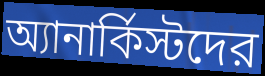
অ্যানার্কিস্টদের